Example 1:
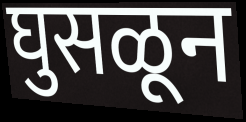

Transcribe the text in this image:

घुसळून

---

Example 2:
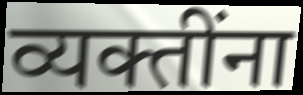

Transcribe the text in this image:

व्यक्‍तींना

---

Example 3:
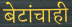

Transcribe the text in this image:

बेटांचाही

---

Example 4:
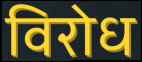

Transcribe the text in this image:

विरोध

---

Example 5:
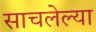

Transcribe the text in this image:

साचलेल्या